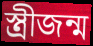
স্ত্রীজন্ম